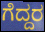
ಗೆದ್ದರ